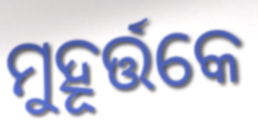
ମୁହୂର୍ତ୍ତକେ